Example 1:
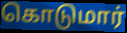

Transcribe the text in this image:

கொடுமார்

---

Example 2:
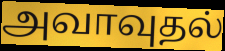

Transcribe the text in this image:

அவாவுதல்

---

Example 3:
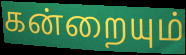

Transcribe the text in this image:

கன்றையும்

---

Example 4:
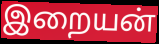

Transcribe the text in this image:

இறையன்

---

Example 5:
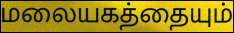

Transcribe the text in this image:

மலையகத்தையும்